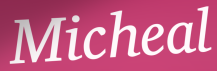
Micheal